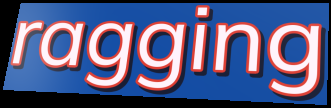
ragging